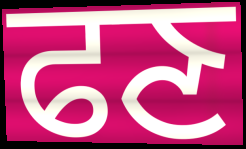
ਫਣ